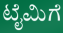
ಟೈಮಿಗೆ